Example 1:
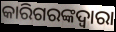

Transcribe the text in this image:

କାରିଗରଙ୍କଦ୍ୱାରା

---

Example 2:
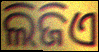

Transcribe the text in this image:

ଲିଜିଏ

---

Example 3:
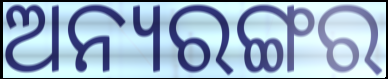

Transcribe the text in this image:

ଅନ୍ୟରଙ୍ଗର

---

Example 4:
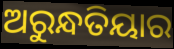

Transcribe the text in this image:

ଅରୁନ୍ଧତିୟାର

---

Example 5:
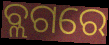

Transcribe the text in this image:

ବ୍ଲଗରେ